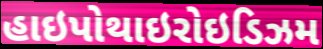
હાઇપોથાઇરોઇડિઝમ